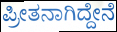
ಪ್ರೀತನಾಗಿದ್ದೇನೆ